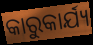
କାରୁକାର୍ଯ୍ୟ